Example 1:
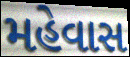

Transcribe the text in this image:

મહેવાસ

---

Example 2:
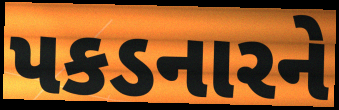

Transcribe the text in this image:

પકડનારને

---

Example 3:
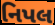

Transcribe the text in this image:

નિપલ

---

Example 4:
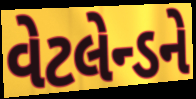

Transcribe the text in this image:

વેટલેન્ડને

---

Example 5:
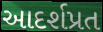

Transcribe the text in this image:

આદર્શપ્રત